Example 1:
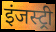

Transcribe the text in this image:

इंजस्ट्री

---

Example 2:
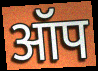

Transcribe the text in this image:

ऑप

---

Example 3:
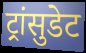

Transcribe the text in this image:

ट्रांसुडेट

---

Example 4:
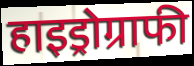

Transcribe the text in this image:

हाइड्रोग्राफी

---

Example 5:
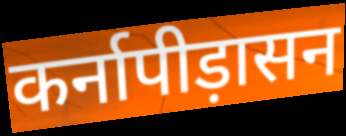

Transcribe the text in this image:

कर्नापीड़ासन